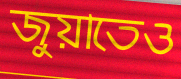
জুয়াতেও